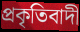
প্ৰকৃতিবাদী